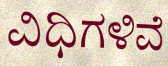
ವಿಧಿಗಳಿವೆ